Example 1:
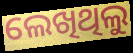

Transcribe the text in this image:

ଲେଖିଥିଲୁ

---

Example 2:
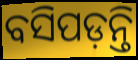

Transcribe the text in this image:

ବସିପଡ଼ନ୍ତି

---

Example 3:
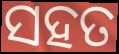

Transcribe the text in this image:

ସହତ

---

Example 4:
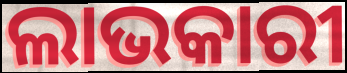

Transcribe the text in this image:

ଲାଭକାରୀ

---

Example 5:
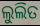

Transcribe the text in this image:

ଲୁଲିତ